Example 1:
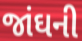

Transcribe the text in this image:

જાંઘની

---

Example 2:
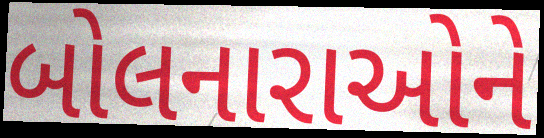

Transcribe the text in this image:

બોલનારાઓને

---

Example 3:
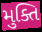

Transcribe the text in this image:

મુક્તિ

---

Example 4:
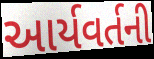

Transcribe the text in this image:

આર્યવર્તની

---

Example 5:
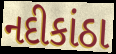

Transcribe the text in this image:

નદીકાંઠા